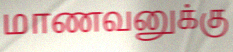
மாணவனுக்கு